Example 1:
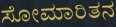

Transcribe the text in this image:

ಸೋಮಾರಿತನ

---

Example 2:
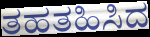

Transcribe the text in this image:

ತಹತಹಿಸಿದ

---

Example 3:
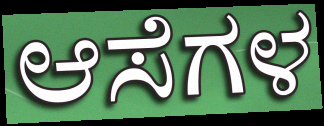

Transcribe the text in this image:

ಆಸೆಗಳ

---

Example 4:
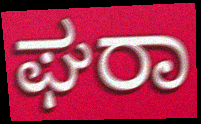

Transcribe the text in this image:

ಘರಾ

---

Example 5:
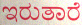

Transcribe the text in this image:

ಇರುತಾರೆ